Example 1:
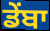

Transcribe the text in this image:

ਡੇਂਬਾ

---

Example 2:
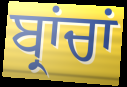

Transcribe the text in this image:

ਬ੍ਰਾਂਚਾਂ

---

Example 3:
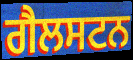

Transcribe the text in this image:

ਗੈਲਸਟਨ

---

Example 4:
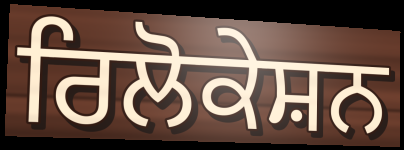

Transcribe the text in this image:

ਰਿਲੋਕੇਸ਼ਨ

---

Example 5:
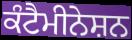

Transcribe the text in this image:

ਕੰਟੈਮੀਨੇਸ਼ਨ